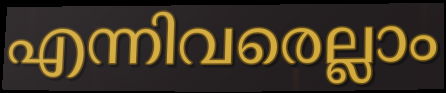
എന്നിവരെല്ലാം